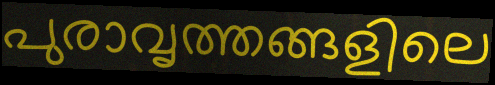
പുരാവൃത്തങ്ങളിലെ